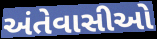
અંતેવાસીઓ